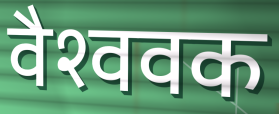
वैश्ववक